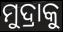
ମୁଦ୍ରାକୁ